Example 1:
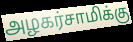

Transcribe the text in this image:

அழகர்சாமிக்கு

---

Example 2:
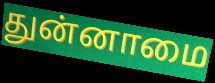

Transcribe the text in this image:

துன்னாமை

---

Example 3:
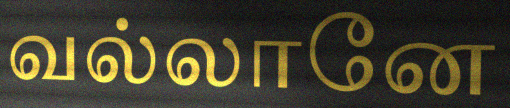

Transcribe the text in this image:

வல்லானே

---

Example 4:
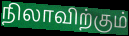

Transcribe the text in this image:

நிலாவிற்கும்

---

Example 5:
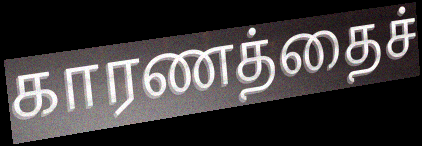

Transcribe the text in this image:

காரணத்தைச்